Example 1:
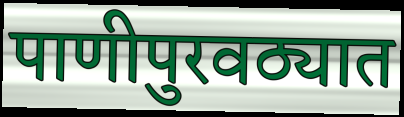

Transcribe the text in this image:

पाणीपुरवठ्यात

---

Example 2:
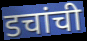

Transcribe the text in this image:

डचांची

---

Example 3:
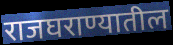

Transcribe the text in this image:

राजघराण्यातील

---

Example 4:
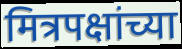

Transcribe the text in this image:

मित्रपक्षांच्या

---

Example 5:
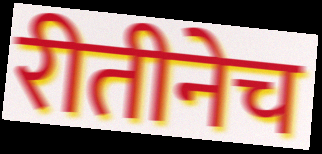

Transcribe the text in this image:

रीतीनेच